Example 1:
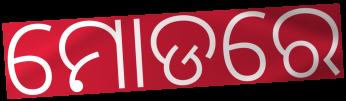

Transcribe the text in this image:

ମୋଡରେ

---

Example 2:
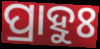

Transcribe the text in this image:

ପ୍ରାହୁଃ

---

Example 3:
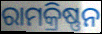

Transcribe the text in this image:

ରାମକ୍ରିଷ୍ଣନ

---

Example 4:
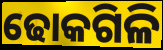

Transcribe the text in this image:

ଢୋକଗିଳି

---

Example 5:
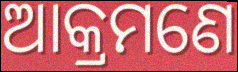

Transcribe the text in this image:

ଆକ୍ରମଣେ